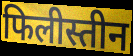
फिलीस्तीन